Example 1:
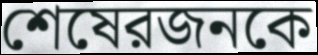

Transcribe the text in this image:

শেষেরজনকে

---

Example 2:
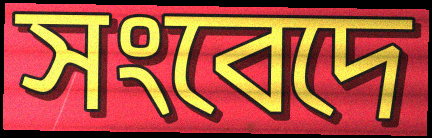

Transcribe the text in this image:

সংবেদে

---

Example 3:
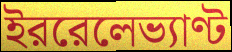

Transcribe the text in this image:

ইররেলেভ্যাণ্ট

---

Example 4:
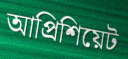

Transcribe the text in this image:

আপ্রিশিয়েট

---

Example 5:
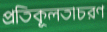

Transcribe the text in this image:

প্রতিকূলতাচরণ